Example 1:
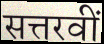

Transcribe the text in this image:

सत्तरवीं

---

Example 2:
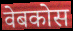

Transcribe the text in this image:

वेबकोस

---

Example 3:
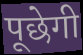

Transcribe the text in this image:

पूछेगी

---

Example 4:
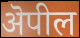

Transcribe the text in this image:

ऄपील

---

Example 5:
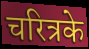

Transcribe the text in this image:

चरित्रके